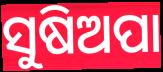
ସୁଷିଅପା